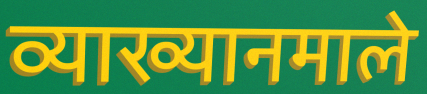
व्याख्यानमाले